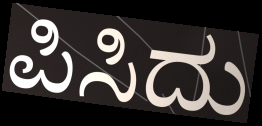
ಪಿಸಿದು